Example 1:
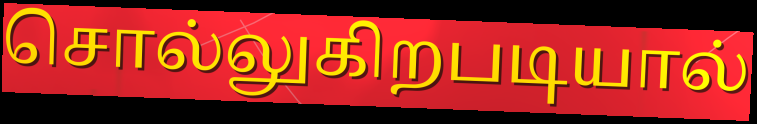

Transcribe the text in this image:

சொல்லுகிறபடியால்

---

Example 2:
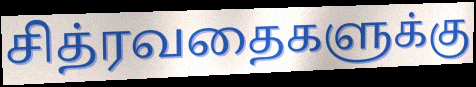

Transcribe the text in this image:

சித்ரவதைகளுக்கு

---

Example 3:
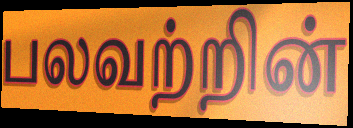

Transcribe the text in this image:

பலவற்றின்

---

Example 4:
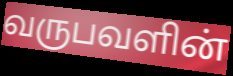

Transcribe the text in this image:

வருபவளின்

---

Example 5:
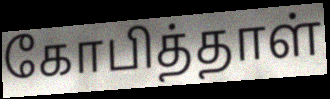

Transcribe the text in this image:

கோபித்தாள்